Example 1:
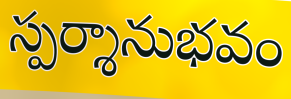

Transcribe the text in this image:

స్పర్శానుభవం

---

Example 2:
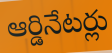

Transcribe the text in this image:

ఆర్డినేటర్లు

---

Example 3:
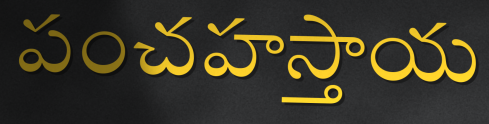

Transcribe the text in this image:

పంచహస్తాయ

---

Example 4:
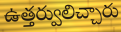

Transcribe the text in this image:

ఉత్తర్వులిచ్చారు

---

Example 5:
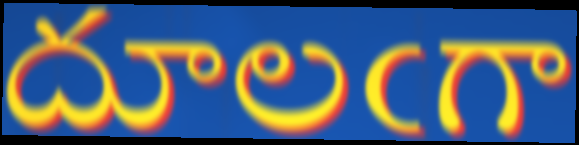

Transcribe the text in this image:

దూలఁగా